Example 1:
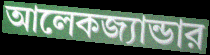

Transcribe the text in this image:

আলেকজ্যান্ডার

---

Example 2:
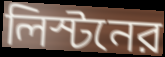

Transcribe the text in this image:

লিস্টনের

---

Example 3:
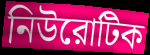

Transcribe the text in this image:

নিউরোটিক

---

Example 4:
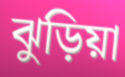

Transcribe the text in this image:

ঝুড়িয়া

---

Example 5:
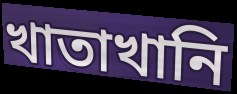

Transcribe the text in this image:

খাতাখানি